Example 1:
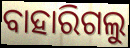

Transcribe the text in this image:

ବାହାରିଗଲୁ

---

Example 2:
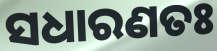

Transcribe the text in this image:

ସଧାରଣତଃ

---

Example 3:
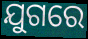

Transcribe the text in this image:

ଯୁଗରେ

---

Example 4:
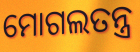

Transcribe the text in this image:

ମୋଗଲତନ୍ତ୍ର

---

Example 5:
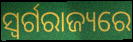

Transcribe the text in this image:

ସ୍ୱର୍ଗରାଜ୍ୟରେ